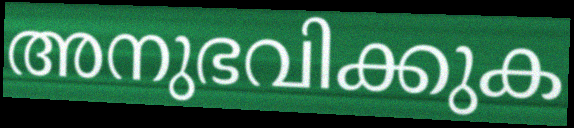
അനുഭവിക്കുക